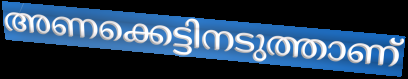
അണക്കെട്ടിനടുത്താണ്